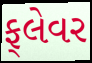
ફ્‌લેવર